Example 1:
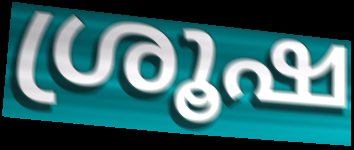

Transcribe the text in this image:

ശ്രൂഷ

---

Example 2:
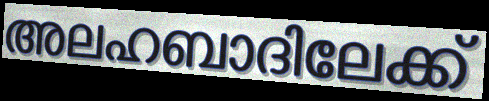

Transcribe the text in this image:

അലഹബാദിലേക്ക്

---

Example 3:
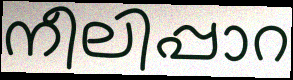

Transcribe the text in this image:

നീലിപ്പാറ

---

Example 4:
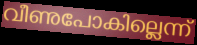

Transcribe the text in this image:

വീണുപോകില്ലെന്ന്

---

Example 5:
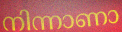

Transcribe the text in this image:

നിന്നാണാ